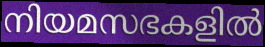
നിയമസഭകളിൽ